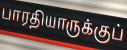
பாரதியாருக்குப்